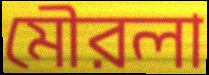
মৌরলা